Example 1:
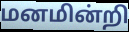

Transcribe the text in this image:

மனமின்றி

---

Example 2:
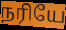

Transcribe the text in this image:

நரியே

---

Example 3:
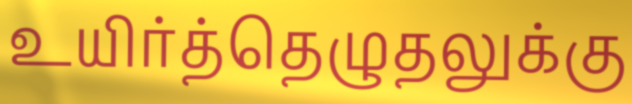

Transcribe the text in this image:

உயிர்த்தெழுதலுக்கு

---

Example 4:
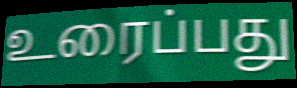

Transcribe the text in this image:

உரைப்பது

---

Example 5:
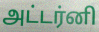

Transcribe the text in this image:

அட்டர்னி